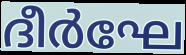
ദീർഘേ